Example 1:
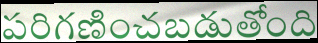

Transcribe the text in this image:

పరిగణించబడుతోంది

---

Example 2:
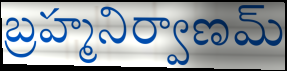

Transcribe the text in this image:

బ్రహ్మనిర్వాణమ్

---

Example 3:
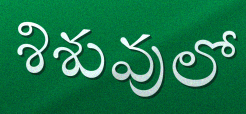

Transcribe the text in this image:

శిశువులో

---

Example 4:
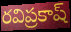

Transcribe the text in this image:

రవిప్రకాష్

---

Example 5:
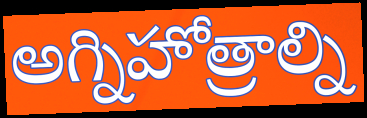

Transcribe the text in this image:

అగ్నిహోత్రాల్ని